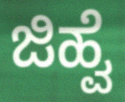
ಜಿಹ್ವೆ